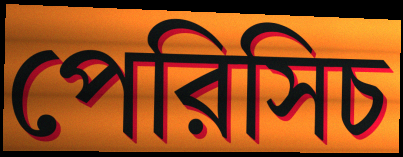
পেরিসিচ